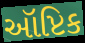
ઑપ્ટિક